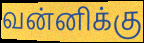
வன்னிக்கு